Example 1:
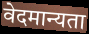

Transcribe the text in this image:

वेदमान्यता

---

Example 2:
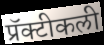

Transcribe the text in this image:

प्रॅक्टीकली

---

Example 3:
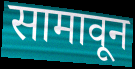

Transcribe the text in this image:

सामावून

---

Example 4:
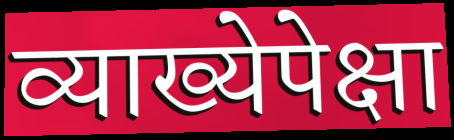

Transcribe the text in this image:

व्याख्येपेक्षा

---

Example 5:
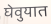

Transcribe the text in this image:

घेवुयात